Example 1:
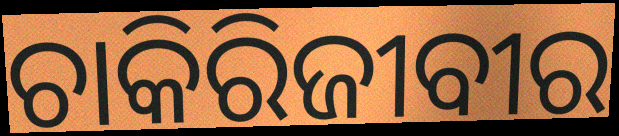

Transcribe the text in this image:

ଚାକିରିଜୀବୀର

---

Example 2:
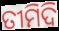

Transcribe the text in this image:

ତୀମିଦି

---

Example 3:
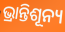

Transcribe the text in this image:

ଭ୍ରାନ୍ତିଶୂନ୍ୟ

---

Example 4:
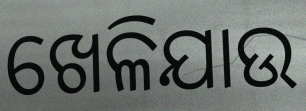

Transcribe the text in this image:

ଖେଳିଯାଉ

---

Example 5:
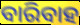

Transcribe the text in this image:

ବାରିବାହ